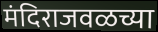
मंदिराजवळच्या